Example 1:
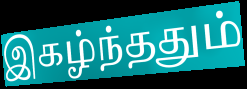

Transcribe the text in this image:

இகழ்ந்ததும்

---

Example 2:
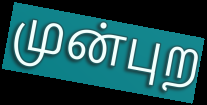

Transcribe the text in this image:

முன்புற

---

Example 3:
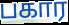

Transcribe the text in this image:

பகார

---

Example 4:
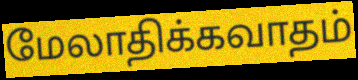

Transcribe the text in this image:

மேலாதிக்கவாதம்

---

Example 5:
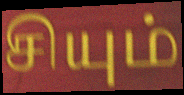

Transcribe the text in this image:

சியும்